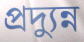
প্রদ্যুন্ন